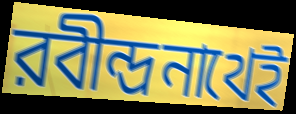
রবীন্দ্রনাথেই